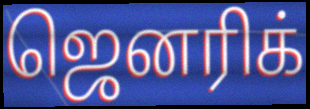
ஜெனரிக்